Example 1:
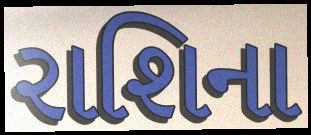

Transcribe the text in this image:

રાશિના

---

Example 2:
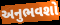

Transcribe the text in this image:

અનુભવશો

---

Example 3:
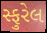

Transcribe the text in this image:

સ્ફુરેલ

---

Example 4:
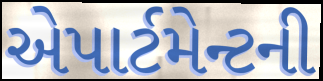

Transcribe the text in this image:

એપાર્ટમેન્ટની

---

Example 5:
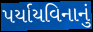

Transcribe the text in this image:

પર્યાયવિનાનું